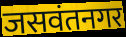
जसवंतनगर